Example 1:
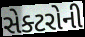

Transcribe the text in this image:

સેક્ટરોની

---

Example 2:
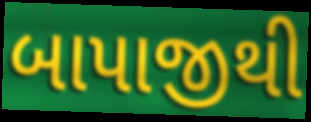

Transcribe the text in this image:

બાપાજીથી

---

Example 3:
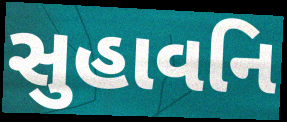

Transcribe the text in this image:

સુહાવનિ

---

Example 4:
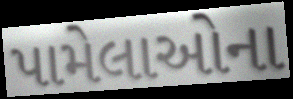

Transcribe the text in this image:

પામેલાઓના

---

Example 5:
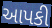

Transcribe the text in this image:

આપકી